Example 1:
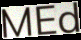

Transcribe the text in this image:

MEd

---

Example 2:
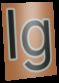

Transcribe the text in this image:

lg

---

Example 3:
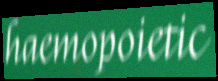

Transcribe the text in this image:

haemopoietic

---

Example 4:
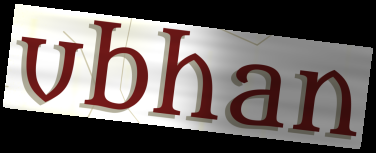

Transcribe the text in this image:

ubhan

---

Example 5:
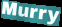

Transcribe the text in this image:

Murry